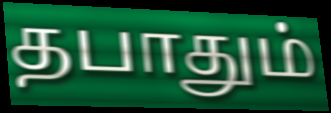
தபாதும்